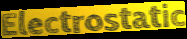
Electrostatic